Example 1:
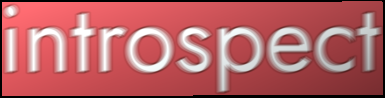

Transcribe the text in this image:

introspect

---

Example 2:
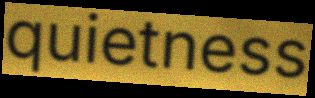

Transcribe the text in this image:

quietness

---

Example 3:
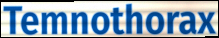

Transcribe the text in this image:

Temnothorax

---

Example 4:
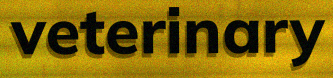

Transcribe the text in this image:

veterinary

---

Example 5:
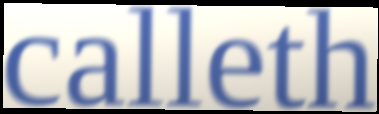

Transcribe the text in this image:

calleth